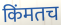
किंमतच